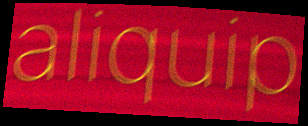
aliquip